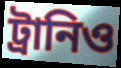
ট্রানিও